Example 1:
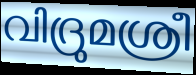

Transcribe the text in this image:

വിദ്രുമശ്രീ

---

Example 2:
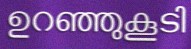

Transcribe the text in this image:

ഉറഞ്ഞുകൂടി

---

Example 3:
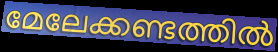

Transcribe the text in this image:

മേലേക്കണ്ടത്തിൽ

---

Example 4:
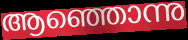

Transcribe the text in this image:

ആഞ്ഞൊന്നു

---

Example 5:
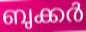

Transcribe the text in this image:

ബുക്കർ